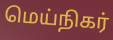
மெய்நிகர்